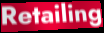
Retailing